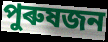
পুৰুষজন